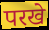
परखे